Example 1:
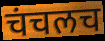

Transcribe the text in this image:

चंचलच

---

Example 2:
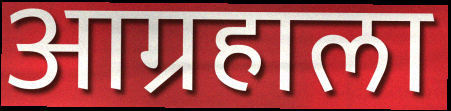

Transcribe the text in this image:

आग्रहाला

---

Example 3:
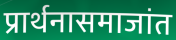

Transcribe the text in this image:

प्रार्थनासमाजांत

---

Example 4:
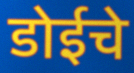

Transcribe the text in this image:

डोईचे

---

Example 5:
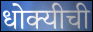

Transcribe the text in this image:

धोक्यीची